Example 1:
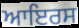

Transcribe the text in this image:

ਆਇਰਸ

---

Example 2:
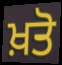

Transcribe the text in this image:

ਖ਼ਤੋ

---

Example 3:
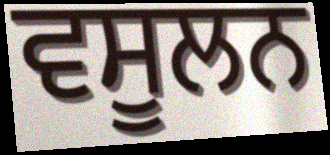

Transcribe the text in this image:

ਵਸੂਲਨ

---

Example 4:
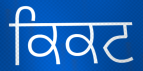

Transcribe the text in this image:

ਕਿਕਟ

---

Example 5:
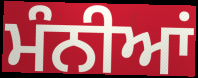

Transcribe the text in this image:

ਮੰਨੀਆਂ